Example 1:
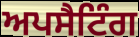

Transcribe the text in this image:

ਅਪਸੈਟਿੰਗ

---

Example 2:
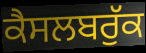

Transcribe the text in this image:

ਕੈਸਲਬਰੁੱਕ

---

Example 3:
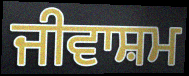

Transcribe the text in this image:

ਜੀਵਾਸ਼ਮ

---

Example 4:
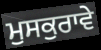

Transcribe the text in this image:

ਮੁਸਕੁਰਾਵੇ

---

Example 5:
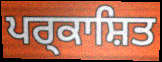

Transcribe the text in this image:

ਪਰ੍ਕਾਸ਼ਿਤ